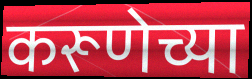
करूणेच्या